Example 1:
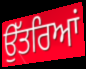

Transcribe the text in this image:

ਉੱਤਰਿਆਂ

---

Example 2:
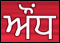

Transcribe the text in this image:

ਔਂਧ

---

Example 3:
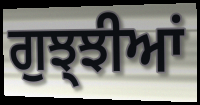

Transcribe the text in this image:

ਗੁਝ੍ਝੀਆਂ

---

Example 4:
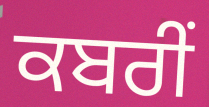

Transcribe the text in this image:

ਕਬਰੀਂ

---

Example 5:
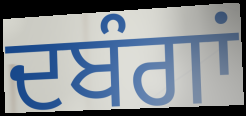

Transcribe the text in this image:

ਦਬੰਗਾਂ